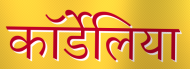
कॉर्डेलिया